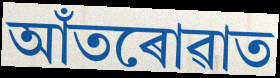
আঁতৰোৱাত